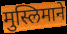
मुस्लिमाने